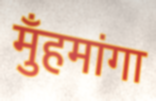
मुँहमांगा